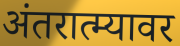
अंतरात्म्यावर